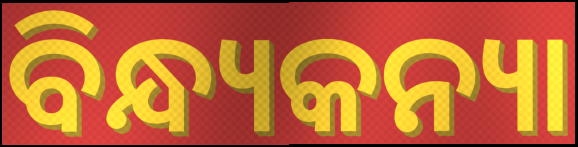
ବିନ୍ଧ୍ୟକନ୍ୟା